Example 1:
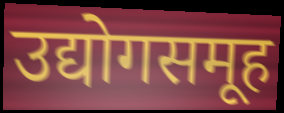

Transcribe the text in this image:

उद्योगसमूह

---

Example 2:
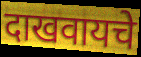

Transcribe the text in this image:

दाखवायचे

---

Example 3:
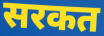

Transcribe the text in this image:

सरकत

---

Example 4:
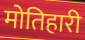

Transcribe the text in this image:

मोतिहारी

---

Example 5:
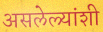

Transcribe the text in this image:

असलेल्यांशी